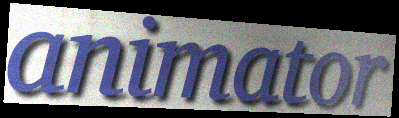
animator